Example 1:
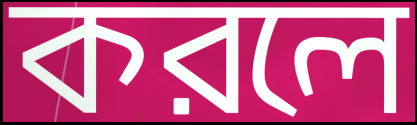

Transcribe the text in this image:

করলে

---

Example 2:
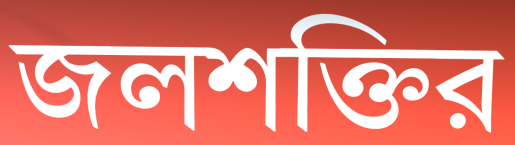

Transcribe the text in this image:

জলশক্তির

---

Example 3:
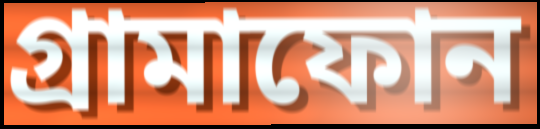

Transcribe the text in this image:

গ্রামাফোন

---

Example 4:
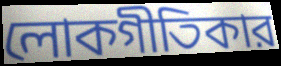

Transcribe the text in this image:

লোকগীতিকার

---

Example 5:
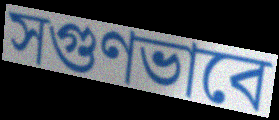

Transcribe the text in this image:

সগুণভাবে